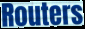
Routers